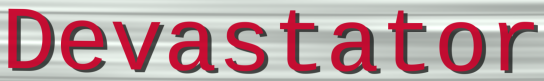
Devastator